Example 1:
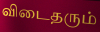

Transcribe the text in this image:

விடைதரும்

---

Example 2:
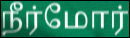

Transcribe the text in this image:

நீர்மோர்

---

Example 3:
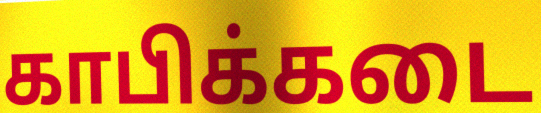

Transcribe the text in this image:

காபிக்கடை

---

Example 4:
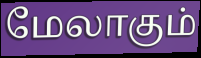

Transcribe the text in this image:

மேலாகும்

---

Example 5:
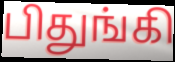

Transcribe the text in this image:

பிதுங்கி